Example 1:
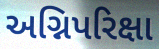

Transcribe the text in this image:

અગ્નિપરિક્ષા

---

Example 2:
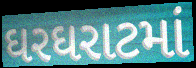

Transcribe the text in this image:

ઘરઘરાટમાં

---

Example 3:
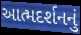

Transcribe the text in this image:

આત્મદર્શનનું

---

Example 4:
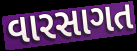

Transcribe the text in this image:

વારસાગત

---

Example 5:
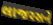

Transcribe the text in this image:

લાજરસને